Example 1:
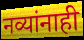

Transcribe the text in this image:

नव्यांनाही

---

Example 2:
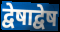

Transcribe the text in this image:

द्वेषाद्वेष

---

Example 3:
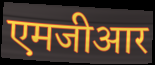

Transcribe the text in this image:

एमजीआर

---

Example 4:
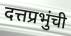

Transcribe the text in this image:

दत्तप्रभुंची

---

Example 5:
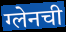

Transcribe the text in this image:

ग्लेनची